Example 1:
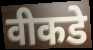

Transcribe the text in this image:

वीकडे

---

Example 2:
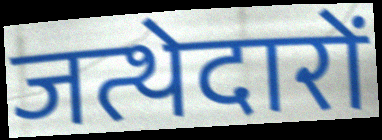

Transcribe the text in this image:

जत्थेदारों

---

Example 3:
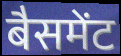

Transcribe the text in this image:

बैसमेंट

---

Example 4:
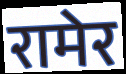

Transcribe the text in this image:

रामेर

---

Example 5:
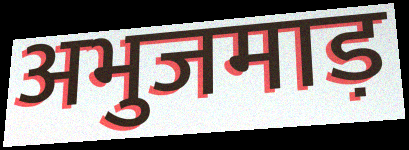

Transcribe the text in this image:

अभुजमाड़